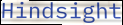
Hindsight